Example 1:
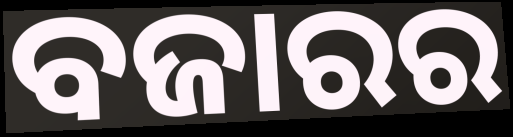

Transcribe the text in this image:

ବଜାରର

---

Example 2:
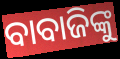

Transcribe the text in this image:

ବାବାଜିଙ୍କୁ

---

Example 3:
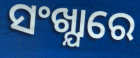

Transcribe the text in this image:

ସଂଖ୍ଯାରେ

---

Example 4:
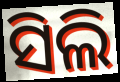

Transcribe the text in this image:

ସିଲି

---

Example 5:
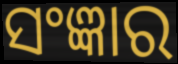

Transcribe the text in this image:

ସଂଜ୍ଞାର